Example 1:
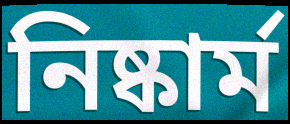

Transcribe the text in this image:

নিষ্কার্ম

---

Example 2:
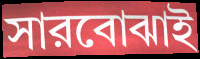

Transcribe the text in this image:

সারবোঝাই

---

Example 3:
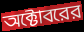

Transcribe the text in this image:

অক্টোবরের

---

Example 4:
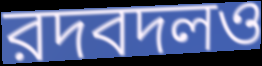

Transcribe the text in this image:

রদবদলও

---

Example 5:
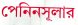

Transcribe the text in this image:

পেনিনসূলার